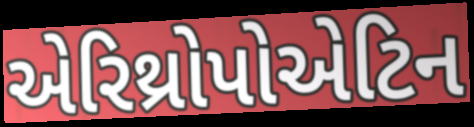
એરિથ્રોપોએટિન